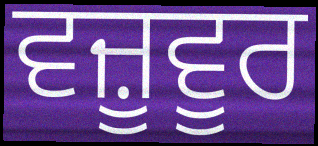
ਵਜ਼ੂਵੂਰ